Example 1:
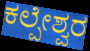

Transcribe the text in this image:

ಕಲ್ಪೇಶ್ವರ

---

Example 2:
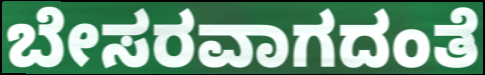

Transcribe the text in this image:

ಬೇಸರವಾಗದಂತೆ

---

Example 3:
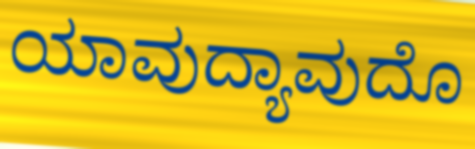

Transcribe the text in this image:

ಯಾವುದ್ಯಾವುದೊ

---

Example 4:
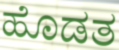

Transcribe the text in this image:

ಹೊಡತ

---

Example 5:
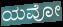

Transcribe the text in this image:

ಯವೋ